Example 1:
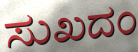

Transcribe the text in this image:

ಸುಖದಂ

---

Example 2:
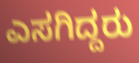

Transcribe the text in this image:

ಎಸಗಿದ್ದರು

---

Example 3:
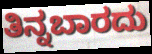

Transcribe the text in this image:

ತಿನ್ನಬಾರದು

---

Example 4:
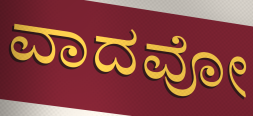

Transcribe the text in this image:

ವಾದವೋ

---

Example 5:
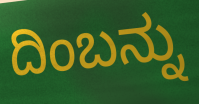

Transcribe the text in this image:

ದಿಂಬನ್ನು